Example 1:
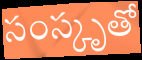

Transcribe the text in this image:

సంస్కృతో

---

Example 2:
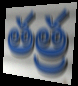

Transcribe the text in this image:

తత్ర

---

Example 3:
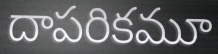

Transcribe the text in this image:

దాపరికమూ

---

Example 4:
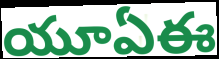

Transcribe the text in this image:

యూఏఈ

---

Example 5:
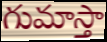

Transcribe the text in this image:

గుమాస్తా